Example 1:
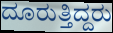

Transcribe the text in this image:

ದೂರುತ್ತಿದ್ದರು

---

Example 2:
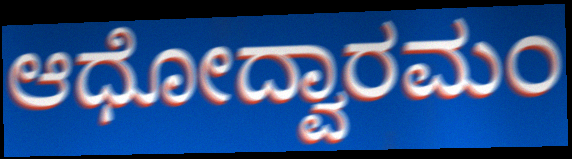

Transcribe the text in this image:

ಆಧೋದ್ವಾರಮಂ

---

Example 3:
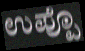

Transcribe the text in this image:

ಉಪ್ಪೊ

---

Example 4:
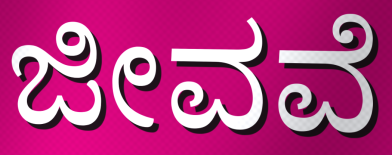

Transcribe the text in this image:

ಜೀವವೆ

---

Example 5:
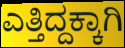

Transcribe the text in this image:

ಎತ್ತಿದ್ದಕ್ಕಾಗಿ